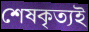
শেষকৃত্যই